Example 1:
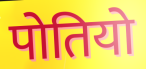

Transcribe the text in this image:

पोतियो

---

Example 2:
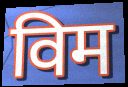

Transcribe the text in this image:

विम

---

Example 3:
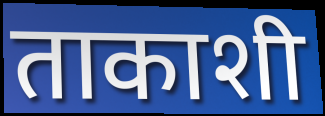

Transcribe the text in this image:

ताकाशी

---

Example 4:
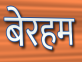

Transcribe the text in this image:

बेरहम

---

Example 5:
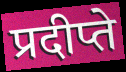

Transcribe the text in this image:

प्रदीप्ते